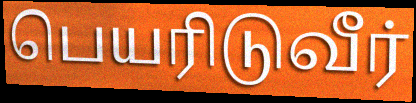
பெயரிடுவீர்